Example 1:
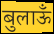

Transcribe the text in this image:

बुलाऊँ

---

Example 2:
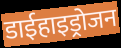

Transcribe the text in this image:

डाईहाइड्रोजन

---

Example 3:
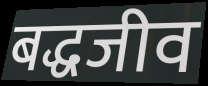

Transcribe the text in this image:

बद्धजीव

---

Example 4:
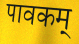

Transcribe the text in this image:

पावकम्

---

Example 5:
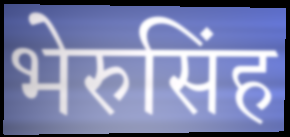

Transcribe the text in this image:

भेरुसिंह